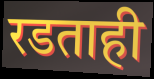
रडताही